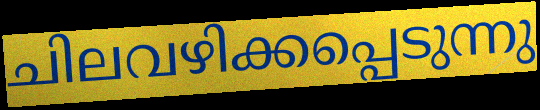
ചിലവഴിക്കപ്പെടുന്നു